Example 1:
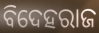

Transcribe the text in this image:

ବିଦେହରାଜ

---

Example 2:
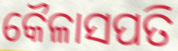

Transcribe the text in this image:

କୈଳାସପତି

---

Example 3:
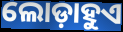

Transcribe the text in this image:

ଲୋଡ଼ାହୁଏ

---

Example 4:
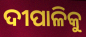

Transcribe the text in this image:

ଦୀପାଳିକୁ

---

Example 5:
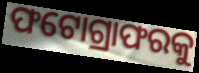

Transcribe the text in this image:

ଫଟୋଗ୍ରାଫରକୁ